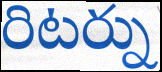
రిటర్ను